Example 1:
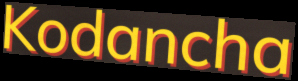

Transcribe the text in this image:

Kodancha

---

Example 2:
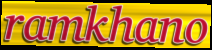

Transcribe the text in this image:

ramkhano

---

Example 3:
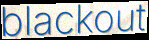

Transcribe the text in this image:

blackout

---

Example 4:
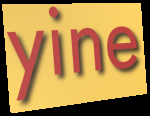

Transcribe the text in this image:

yine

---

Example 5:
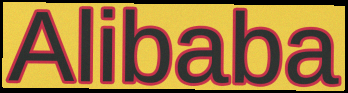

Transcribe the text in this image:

Alibaba